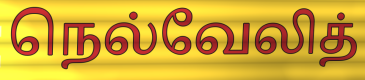
நெல்வேலித்